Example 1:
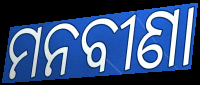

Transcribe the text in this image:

ମନବୀଣା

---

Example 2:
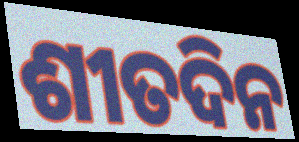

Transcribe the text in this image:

ଶୀତଦିନ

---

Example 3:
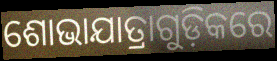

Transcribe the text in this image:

ଶୋଭାଯାତ୍ରାଗୁଡ଼ିକରେ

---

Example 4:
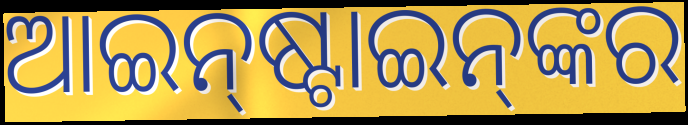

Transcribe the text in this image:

ଆଇନ୍‌ଷ୍ଟାଇନ୍‌ଙ୍କର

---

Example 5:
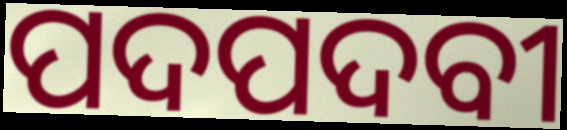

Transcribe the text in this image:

ପଦପଦବୀ